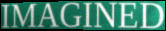
IMAGINED